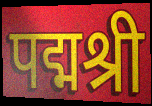
पद्मश्री